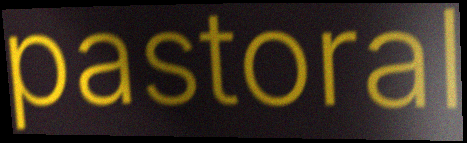
pastoral